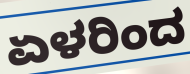
ಏಳರಿಂದ